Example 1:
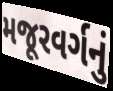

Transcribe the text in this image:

મજૂરવર્ગનું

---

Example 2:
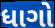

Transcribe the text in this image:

ધાગો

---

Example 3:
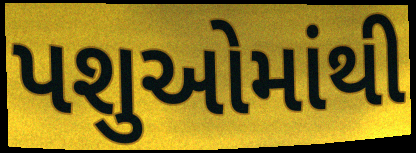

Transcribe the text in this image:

પશુઓમાંથી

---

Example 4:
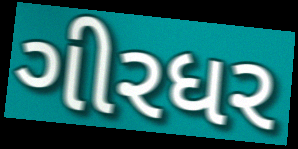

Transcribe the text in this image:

ગીરધર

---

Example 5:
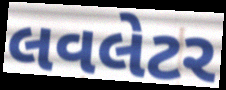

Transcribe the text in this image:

લવલેટર